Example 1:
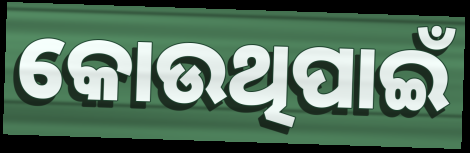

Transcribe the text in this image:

କୋଉଥିପାଇଁ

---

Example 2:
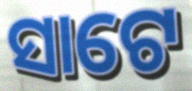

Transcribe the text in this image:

ସାଟେ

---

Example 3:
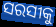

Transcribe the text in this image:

ସରସୀକୁ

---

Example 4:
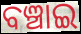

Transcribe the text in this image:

ବଞ୍ଚାଇ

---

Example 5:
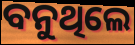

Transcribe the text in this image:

ବନୁଥିଲେ